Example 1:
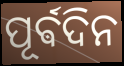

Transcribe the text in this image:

ପୂର୍ଵଦିନ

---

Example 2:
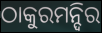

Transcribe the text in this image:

ଠାକୁରମନ୍ଦିର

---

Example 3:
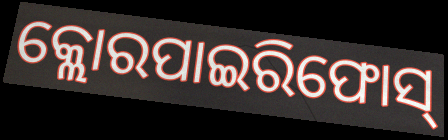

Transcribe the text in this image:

କ୍ଲୋରପାଇରିଫୋସ୍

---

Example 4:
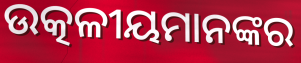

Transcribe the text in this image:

ଉତ୍କଳୀୟମାନଙ୍କର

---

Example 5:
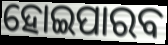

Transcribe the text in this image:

ହୋଇପାରବ